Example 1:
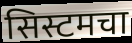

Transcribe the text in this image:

सिस्टमचा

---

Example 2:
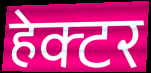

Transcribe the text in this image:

हेक्‍टर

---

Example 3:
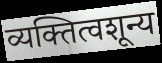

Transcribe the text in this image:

व्यक्तित्वशून्य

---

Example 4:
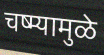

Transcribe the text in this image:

चष्म्यामुळे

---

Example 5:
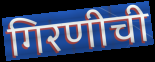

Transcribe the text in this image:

गिरणीची